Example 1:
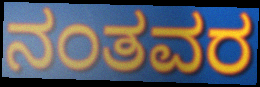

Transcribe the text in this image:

ನಂತವರ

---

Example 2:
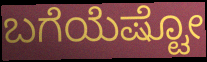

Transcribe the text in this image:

ಬಗೆಯೆಷ್ಟೋ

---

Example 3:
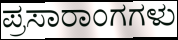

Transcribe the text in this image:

ಪ್ರಸಾರಾಂಗಗಳು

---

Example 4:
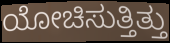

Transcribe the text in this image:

ಯೋಚಿಸುತ್ತಿತ್ತು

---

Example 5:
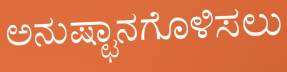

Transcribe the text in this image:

ಅನುಷ್ಟಾನಗೊಳಿಸಲು